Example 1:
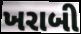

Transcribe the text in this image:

ખરાબી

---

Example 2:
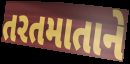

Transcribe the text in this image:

તરતમાતાને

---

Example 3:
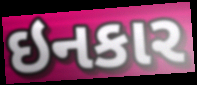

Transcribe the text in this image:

ઇનકાર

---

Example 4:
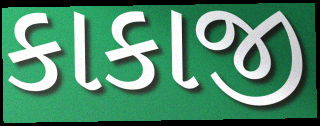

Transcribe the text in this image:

કાકાજી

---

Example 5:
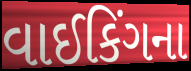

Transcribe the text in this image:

વાઈકિંગના